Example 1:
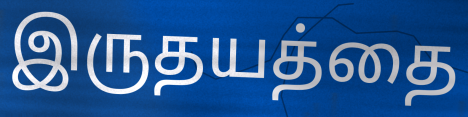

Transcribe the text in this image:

இருதயத்தை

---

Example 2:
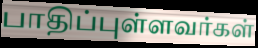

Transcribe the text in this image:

பாதிப்புள்ளவர்கள்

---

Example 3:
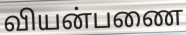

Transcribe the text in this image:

வியன்பணை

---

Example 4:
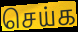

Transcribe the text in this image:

செய்க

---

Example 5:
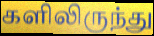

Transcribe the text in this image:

களிலிருந்து